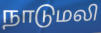
நாடுமலி